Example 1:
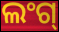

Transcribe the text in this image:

ଲଂଗ୍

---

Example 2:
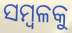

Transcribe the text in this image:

ସମ୍ବଳକୁ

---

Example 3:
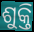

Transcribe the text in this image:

ଶୁକ୍ତି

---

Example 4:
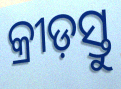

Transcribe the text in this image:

କ୍ରୀଡ଼ସ୍ତୁ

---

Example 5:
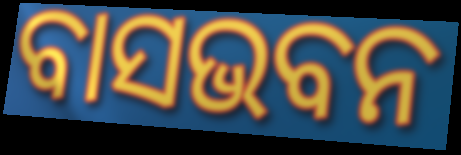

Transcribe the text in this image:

ବାସଭବନ